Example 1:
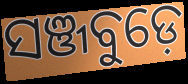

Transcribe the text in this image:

ସଞ୍ଜବୁଡ଼େ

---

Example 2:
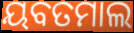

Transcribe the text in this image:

ୟବତମାଲ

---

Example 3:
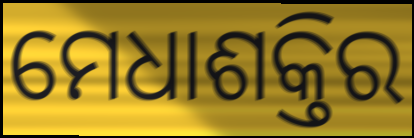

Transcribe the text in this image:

ମେଧାଶକ୍ତିର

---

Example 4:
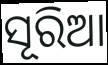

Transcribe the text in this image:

ସୂରିଆ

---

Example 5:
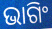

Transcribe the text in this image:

ଭାଗିଂ